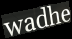
wadhe